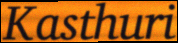
Kasthuri